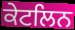
ਕੇਟਲਿਨ